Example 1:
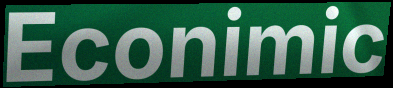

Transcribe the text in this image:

Econimic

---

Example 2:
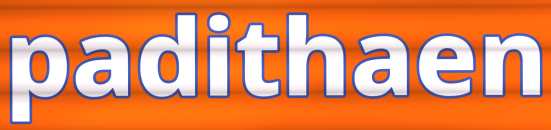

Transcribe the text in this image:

padithaen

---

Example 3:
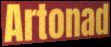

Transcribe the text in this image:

Artonad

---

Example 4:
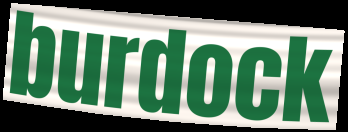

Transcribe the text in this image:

burdock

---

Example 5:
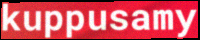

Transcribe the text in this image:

kuppusamy